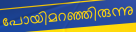
പോയിമറഞ്ഞിരുന്നു